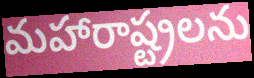
మహారాష్ట్రలను